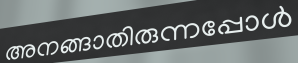
അനങ്ങാതിരുന്നപ്പോൾ